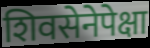
शिवसेनेपेक्षा